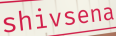
shivsena